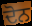
ਦੋਨ